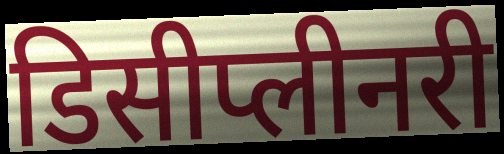
डिसीप्लीनरी